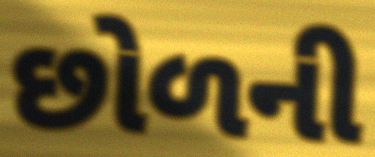
છોળની